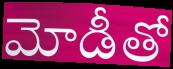
మోడీతో